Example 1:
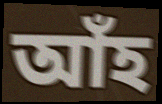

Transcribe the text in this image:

আঁহ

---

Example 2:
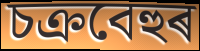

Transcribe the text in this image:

চক্ৰবেহুৰ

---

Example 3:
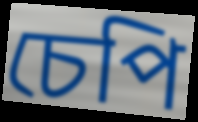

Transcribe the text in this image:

চেপি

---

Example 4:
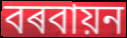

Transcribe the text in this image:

বৰবায়ন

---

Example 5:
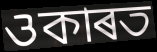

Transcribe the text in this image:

ওকাৰত